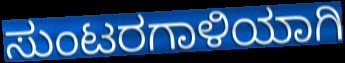
ಸುಂಟರಗಾಳಿಯಾಗಿ